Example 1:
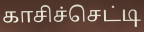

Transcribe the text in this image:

காசிச்செட்டி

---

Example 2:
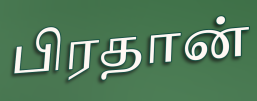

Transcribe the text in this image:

பிரதான்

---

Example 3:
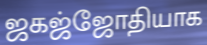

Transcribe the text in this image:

ஜகஜ்ஜோதியாக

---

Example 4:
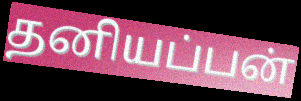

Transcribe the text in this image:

தனியப்பன்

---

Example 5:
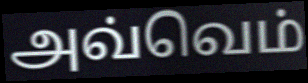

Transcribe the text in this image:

அவ்வெம்